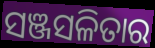
ସଞ୍ଜସଳିତାର